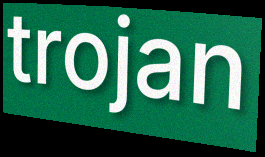
trojan